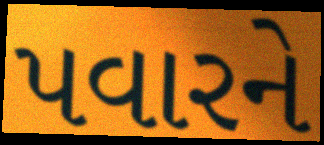
પવારને